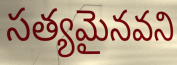
సత్యమైనవని